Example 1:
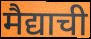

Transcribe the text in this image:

मैद्याची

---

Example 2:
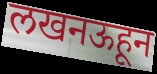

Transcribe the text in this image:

लखनऊहून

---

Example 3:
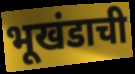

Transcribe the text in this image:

भूखंडाची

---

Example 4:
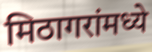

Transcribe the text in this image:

मिठागरांमध्ये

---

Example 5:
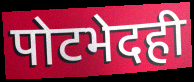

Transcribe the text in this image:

पोटभेदही